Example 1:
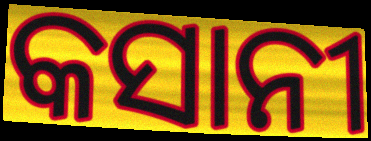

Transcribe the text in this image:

କସାନୀ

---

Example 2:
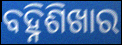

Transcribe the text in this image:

ବହ୍ନିଶିଖାର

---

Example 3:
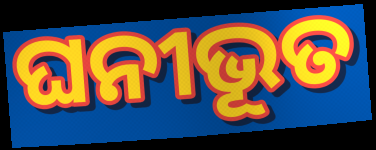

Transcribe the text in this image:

ଘନୀଭୂତ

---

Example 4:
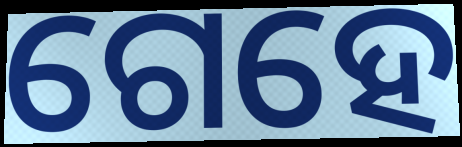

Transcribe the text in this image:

ଗେହେ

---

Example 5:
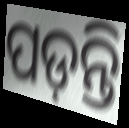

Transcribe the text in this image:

ପଡ଼ନ୍ତି